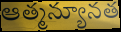
ఆత్మన్యూనత